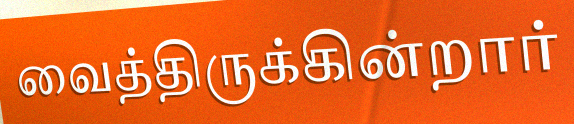
வைத்திருக்கின்றார்